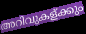
അറിവുകള്ക്കും